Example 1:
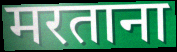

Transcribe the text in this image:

मरताना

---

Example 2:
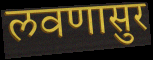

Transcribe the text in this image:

लवणासुर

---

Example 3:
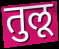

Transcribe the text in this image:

तुलू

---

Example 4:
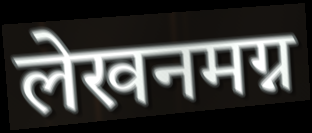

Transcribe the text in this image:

लेखनमग्न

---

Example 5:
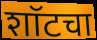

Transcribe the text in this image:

शॉटचा